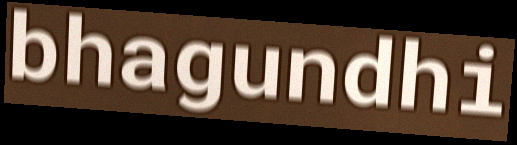
bhagundhi